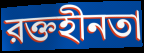
রক্তহীনতা